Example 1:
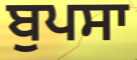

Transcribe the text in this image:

ਬੁਪਸਾ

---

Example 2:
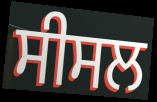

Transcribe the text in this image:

ਸੀਸਲ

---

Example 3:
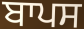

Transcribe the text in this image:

ਬਾਪਸ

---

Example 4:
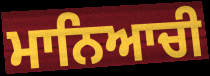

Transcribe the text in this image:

ਮਾਨਿਆਚੀ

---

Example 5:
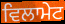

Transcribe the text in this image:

ਵਿਲਾਮੇਟ